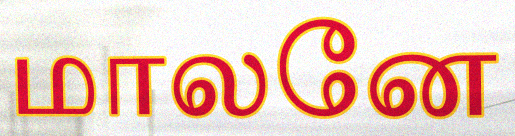
மாலனே